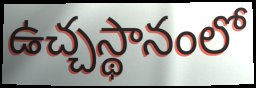
ఉచ్చస్థానంలో